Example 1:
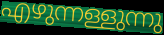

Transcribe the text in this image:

എഴുന്നള്ളുന്നു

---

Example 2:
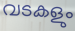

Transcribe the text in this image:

വടകളും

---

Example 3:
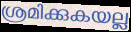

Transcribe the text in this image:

ശ്രമിക്കുകയല്ല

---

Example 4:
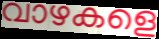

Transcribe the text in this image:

വാഴകളെ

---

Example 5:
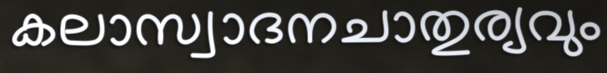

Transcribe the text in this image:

കലാസ്വാദനചാതുര്യവും